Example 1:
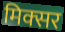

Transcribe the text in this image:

मिक्‍सर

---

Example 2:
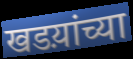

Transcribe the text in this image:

खडय़ांच्या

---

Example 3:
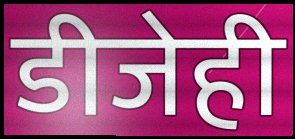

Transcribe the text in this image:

डीजेही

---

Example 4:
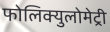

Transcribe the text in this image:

फोलिक्युलोमेट्री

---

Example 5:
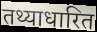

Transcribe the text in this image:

तथ्याधारित